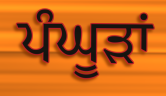
ਪੰਘੂੜਾਂ